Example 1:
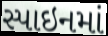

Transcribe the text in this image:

સ્પાઇનમાં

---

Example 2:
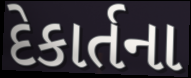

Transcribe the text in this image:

દેકાર્તના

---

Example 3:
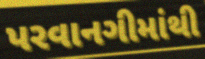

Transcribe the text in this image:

પરવાનગીમાંથી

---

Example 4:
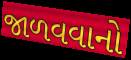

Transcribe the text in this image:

જાળવવાનો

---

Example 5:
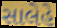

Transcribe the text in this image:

સાલેહે